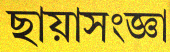
ছায়াসংজ্ঞা